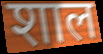
शाल